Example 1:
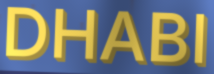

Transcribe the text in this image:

DHABI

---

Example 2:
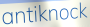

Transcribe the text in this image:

antiknock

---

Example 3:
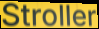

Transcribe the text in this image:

Stroller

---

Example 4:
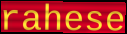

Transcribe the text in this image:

rahese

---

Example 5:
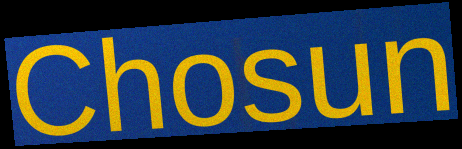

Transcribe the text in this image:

Chosun